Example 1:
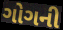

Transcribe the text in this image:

ગોગની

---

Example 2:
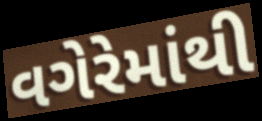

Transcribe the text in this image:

વગેરેમાંથી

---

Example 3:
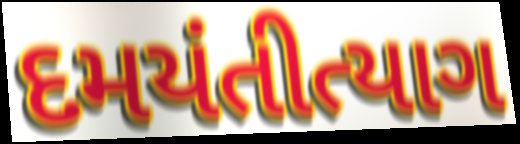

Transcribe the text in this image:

દમયંતીત્યાગ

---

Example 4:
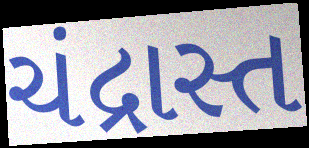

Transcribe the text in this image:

ચંદ્રાસ્ત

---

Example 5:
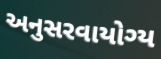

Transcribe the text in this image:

અનુસરવાયોગ્ય